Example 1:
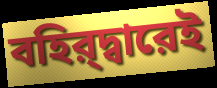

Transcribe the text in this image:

বহির্‌দ্বারেই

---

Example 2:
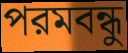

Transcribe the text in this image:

পরমবন্ধু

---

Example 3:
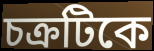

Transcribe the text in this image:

চক্রটিকে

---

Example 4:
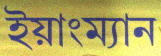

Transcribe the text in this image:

ইয়াংম্যান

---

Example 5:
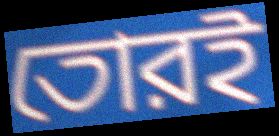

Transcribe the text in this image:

তোরই